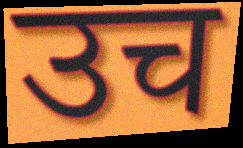
उच